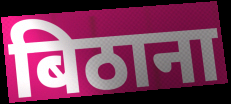
बिठाना